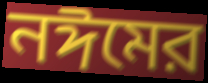
নঈমের